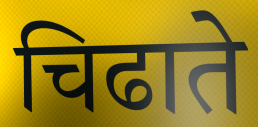
चिढाते